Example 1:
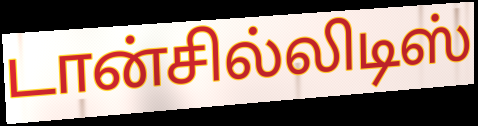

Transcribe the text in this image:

டான்சில்லிடிஸ்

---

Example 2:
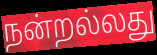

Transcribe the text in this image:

நன்றல்லது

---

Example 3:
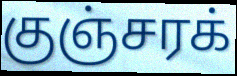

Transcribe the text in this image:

குஞ்சரக்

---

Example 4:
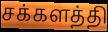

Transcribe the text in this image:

சக்களத்தி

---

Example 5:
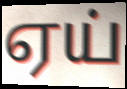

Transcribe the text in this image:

ஏய்